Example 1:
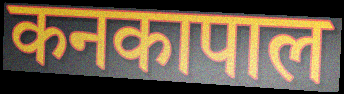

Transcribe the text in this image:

कनकापाल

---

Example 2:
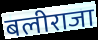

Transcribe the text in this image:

बलीराजा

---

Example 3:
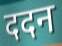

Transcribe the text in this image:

ददन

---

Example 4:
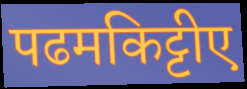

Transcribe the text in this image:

पढमकिट्टीए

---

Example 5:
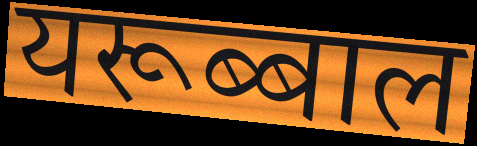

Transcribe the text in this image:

यरूब्बाल